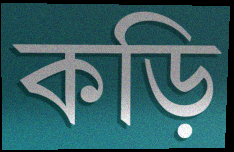
কড়ি